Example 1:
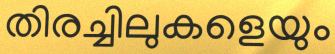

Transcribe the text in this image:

തിരച്ചിലുകളെയും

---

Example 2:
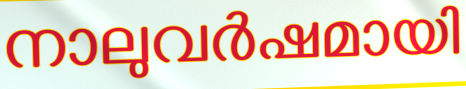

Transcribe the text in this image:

നാലുവർഷമായി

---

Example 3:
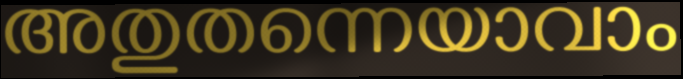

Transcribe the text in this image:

അതുതന്നെയാവാം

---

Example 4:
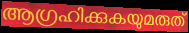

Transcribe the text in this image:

ആഗ്രഹിക്കുകയുമരുത്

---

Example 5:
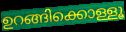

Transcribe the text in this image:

ഉറങ്ങിക്കൊള്ളൂ